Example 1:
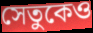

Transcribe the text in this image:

সেতুকেও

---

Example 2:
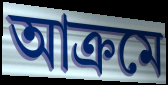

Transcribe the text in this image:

আক্রমে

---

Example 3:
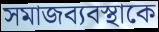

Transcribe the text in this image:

সমাজব্যবস্থাকে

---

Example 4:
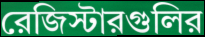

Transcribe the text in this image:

রেজিস্টারগুলির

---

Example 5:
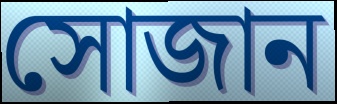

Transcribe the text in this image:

সোজান